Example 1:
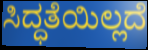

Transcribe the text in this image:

ಸಿದ್ಧತೆಯಿಲ್ಲದೆ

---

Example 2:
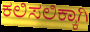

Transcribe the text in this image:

ಕಲಿಸಲಿಕ್ಕಾಗಿ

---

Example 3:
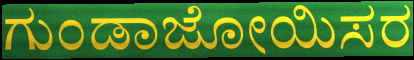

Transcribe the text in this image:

ಗುಂಡಾಜೋಯಿಸರ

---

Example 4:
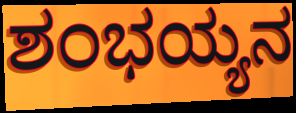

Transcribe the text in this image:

ಶಂಭಯ್ಯನ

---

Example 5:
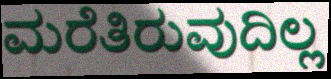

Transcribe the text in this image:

ಮರೆತಿರುವುದಿಲ್ಲ